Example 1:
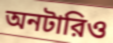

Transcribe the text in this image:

অনটারিও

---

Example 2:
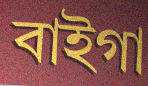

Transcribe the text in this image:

বাইগা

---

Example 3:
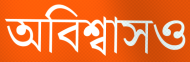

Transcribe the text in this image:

অবিশ্বাসও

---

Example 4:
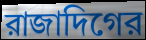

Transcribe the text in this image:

রাজাদিগের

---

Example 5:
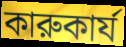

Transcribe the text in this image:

কারুকার্য